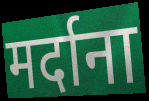
मर्दाना